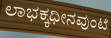
ಲಾಭಕ್ಕಧೀನವುಂಟೆ